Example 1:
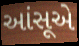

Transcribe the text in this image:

આંસૂએ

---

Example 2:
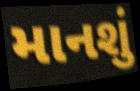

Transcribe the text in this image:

માનશું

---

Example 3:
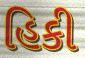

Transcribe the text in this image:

હિકી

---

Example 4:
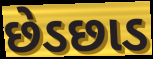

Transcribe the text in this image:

છેડછાડ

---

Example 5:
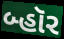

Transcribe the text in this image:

બ્હૉર